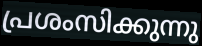
പ്രശംസിക്കുന്നു